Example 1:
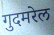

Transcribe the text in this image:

गुदमरेल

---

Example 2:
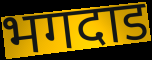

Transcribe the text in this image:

भगदाड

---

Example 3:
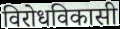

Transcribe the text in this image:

विरोधविकासी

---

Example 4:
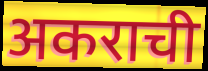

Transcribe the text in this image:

अकराची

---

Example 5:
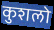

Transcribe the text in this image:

कुशलो